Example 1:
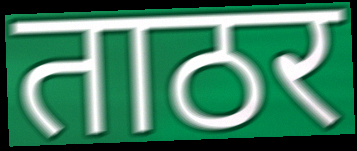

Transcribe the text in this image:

ताठर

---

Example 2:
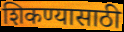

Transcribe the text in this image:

शिकण्यासाठी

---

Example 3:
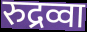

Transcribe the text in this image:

रुद्रव्वा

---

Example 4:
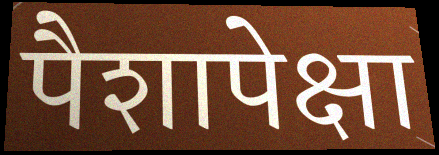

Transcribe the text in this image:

पैशापेक्षा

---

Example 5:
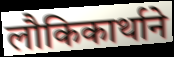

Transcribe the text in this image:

लौकिकार्थाने